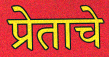
प्रेताचे